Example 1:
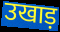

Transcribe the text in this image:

उखाड़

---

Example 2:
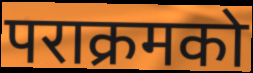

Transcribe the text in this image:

पराक्रमको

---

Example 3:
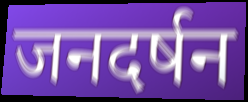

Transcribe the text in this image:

जनदर्षन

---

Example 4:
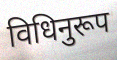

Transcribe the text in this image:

विधिनुरूप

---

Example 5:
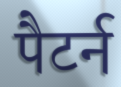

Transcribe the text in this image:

पैटर्न